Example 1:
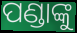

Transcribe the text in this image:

ପଣ୍ଡାଙ୍କୁ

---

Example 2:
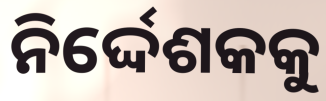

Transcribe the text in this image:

ନିର୍ଦ୍ଦେଶକକୁ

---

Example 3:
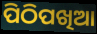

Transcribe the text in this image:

ପିଠିପଖିଆ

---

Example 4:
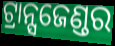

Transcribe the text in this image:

ଟ୍ରାନ୍ସଜେଣ୍ଡର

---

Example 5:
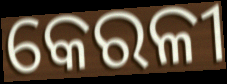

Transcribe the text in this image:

କେରଳୀ